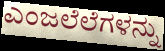
ಎಂಜಲೆಲೆಗಳನ್ನು